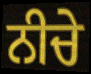
ਨੀਚੇ